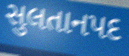
સુલતાનપદ